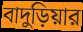
বাদুড়িয়ার